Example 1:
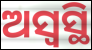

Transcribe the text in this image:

ଅସ୍ୱସ୍ଥି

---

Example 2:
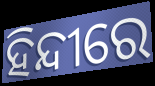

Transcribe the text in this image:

ହିନ୍ଦୀରେ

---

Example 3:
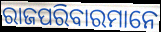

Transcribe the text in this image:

ରାଜପରିବାରମାନେ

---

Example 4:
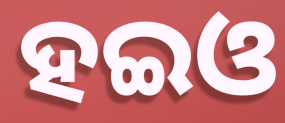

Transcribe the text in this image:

ହଇଓ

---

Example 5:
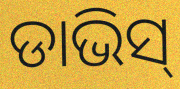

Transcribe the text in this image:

ଡାଭିସ୍